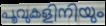
പൂവുകളിനിയും